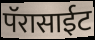
पॅरासाईट